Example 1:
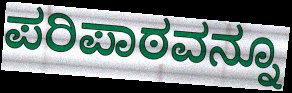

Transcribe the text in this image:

ಪರಿಪಾಠವನ್ನೂ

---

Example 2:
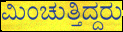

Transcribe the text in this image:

ಮಿಂಚುತ್ತಿದ್ದರು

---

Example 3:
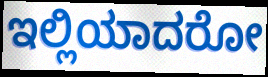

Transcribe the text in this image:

ಇಲ್ಲಿಯಾದರೋ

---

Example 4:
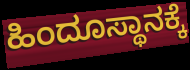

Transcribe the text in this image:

ಹಿಂದೂಸ್ಥಾನಕ್ಕೆ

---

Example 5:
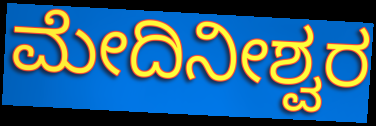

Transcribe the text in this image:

ಮೇದಿನೀಶ್ವರ